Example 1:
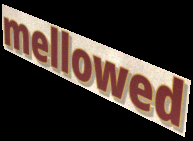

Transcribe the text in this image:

mellowed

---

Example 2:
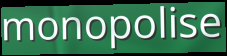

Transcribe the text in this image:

monopolise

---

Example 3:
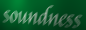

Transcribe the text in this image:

soundness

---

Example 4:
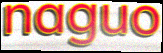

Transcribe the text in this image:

naguo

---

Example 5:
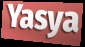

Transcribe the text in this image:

Yasya